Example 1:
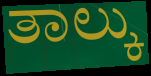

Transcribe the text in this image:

ತಾಲ್ಕು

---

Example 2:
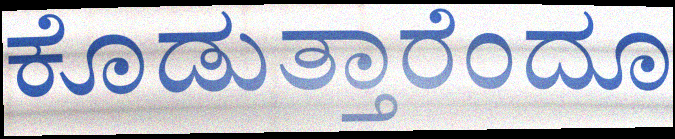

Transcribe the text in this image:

ಕೊಡುತ್ತಾರೆಂದೂ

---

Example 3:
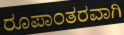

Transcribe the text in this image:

ರೂಪಾಂತರವಾಗಿ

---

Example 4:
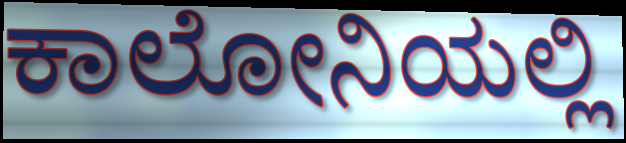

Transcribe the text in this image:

ಕಾಲೋನಿಯಲ್ಲಿ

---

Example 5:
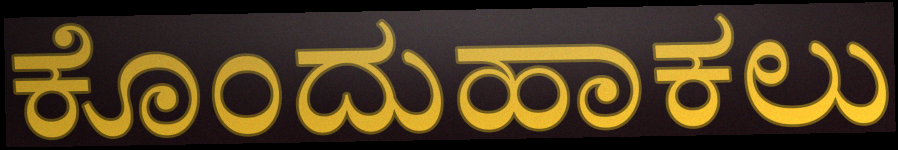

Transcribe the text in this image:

ಕೊಂದುಹಾಕಲು